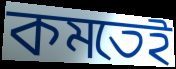
কমতেই